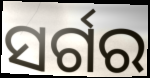
ସର୍ଗର